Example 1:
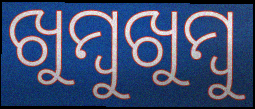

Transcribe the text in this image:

ଖୁମ୍ୱୁଖୁମ୍ବୁ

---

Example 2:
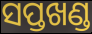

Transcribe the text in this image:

ସପ୍ତଖଣ୍ଡ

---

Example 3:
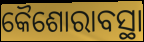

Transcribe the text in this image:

କୈଶୋରାବସ୍ଥା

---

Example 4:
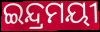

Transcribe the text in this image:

ଇନ୍ଦ୍ରମୟୀ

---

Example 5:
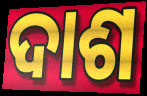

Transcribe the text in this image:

ଦାଶ